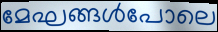
മേഘങ്ങൾപോലെ